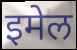
इमेल